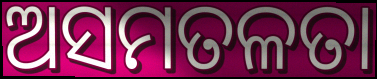
ଅସମତଳତା